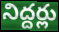
నిద్దర్లు